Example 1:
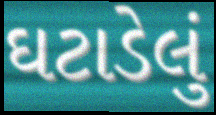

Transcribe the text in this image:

ઘટાડેલું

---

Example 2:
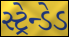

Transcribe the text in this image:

સ્ટ્રેન્ડેડ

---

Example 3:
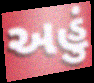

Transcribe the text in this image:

અહું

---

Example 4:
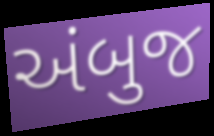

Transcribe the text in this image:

અંબુજ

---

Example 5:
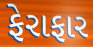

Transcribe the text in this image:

ફેરાફાર